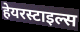
हेयरस्टाइल्स